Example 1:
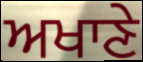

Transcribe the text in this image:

ਅਖਾਣੇ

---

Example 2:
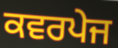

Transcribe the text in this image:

ਕਵਰਪੇਜ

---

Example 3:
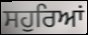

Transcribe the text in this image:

ਸਹੁਰਿਆਂ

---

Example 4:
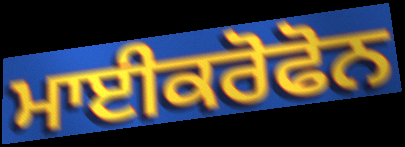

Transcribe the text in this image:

ਮਾਈਕਰੋਫੋਨ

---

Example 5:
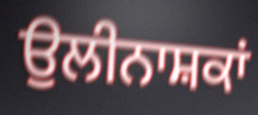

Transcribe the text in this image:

ਉਲੀਨਾਸ਼ਕਾਂ